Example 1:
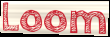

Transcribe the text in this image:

Loom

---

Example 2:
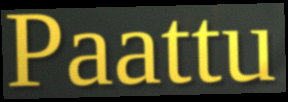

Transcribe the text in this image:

Paattu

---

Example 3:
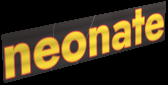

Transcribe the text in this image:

neonate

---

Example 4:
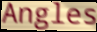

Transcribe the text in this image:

Angles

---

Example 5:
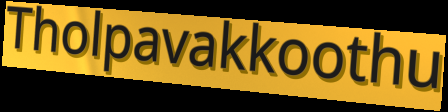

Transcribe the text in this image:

Tholpavakkoothu